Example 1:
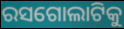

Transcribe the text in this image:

ରସଗୋଲାଟିକୁ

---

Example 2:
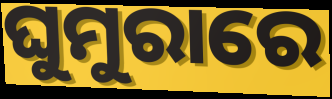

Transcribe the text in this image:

ଘୁମୁରାରେ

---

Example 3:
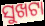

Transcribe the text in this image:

ସୁଖଟା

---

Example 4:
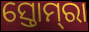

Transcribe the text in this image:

ସ୍ତୋମ୍‌ରା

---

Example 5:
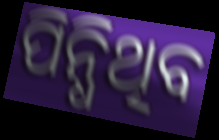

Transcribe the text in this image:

ପିନ୍ଧିଥିବ